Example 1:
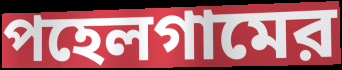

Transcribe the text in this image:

পহেলগামের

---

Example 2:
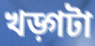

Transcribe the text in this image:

খড়্গটা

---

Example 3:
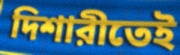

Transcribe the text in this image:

দিশারীতেই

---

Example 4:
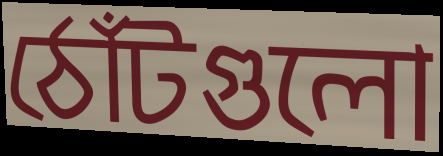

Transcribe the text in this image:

ঠোঁটগুলো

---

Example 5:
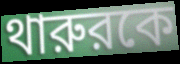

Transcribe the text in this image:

থারুরকে